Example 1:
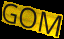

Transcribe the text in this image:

GOM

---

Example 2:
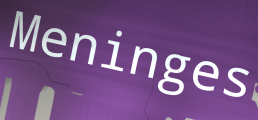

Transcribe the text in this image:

Meninges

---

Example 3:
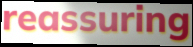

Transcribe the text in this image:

reassuring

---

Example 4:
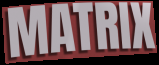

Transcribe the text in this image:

MATRIX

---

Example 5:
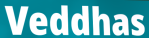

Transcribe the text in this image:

Veddhas